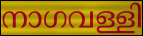
നാഗവള്ളി